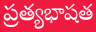
ప్రత్యభాషత